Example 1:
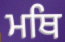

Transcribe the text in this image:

ਮਥਿ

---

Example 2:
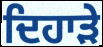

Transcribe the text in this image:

ਦਿਹਾਡ਼ੇ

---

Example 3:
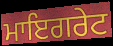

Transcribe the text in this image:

ਮਾਇਗਰੇਟ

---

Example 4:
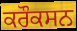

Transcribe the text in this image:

ਕਰੌਕਸਨ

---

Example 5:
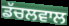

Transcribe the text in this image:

ਡੱਚਲਵਾਲ